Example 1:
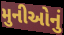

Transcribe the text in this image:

મુનીઓનું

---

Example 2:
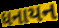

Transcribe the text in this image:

ધનાયન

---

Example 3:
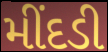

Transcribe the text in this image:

મીંદડી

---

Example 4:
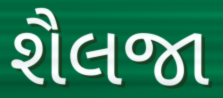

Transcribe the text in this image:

શૈલજા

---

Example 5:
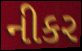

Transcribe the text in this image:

નીકર